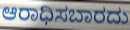
ಆರಾಧಿಸಬಾರದು